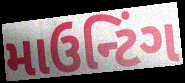
માઉન્ટિંગ